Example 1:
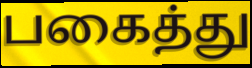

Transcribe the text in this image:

பகைத்து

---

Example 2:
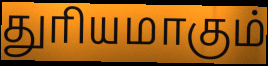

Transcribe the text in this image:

துரியமாகும்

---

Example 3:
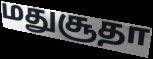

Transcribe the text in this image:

மதுசூதா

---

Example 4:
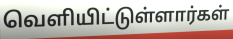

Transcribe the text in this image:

வெளியிட்டுள்ளார்கள்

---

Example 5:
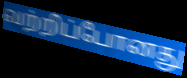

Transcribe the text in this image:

வற்றிப்போனது